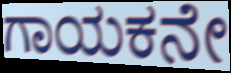
ಗಾಯಕನೇ